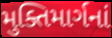
મુક્તિમાર્ગનાં